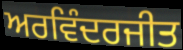
ਅਰਵਿੰਦਰਜੀਤ